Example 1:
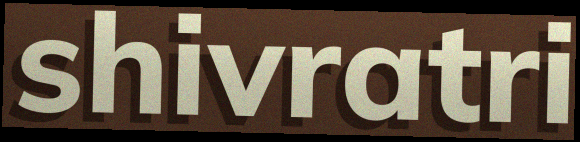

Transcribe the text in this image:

shivratri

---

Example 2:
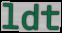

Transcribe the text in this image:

ldt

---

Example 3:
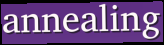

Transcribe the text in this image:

annealing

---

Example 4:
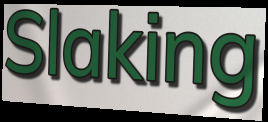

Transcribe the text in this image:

Slaking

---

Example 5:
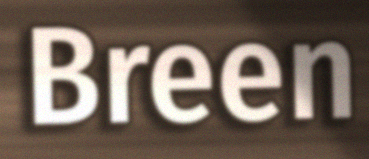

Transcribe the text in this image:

Breen